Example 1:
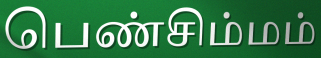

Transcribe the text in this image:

பெண்சிம்மம்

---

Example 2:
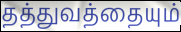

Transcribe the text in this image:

தத்துவத்தையும்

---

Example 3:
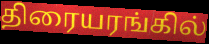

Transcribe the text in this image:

திரையரங்கில்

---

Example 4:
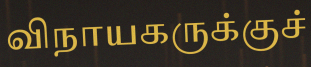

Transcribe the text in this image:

விநாயகருக்குச்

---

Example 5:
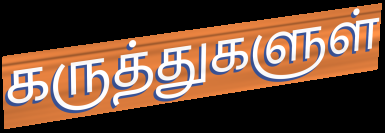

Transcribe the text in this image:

கருத்துகளுள்